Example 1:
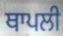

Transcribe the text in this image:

ਥਾਪਲੀ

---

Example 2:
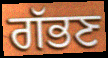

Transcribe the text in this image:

ਗੱਭਣ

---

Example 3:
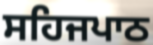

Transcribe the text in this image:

ਸਹਿਜਪਾਠ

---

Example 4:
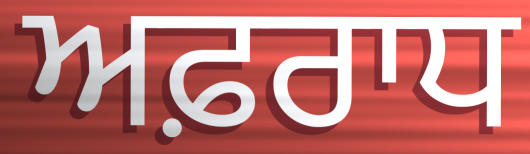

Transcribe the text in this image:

ਅਫ਼ਰਾਧ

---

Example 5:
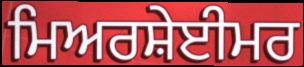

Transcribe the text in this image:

ਮਿਅਰਸ਼ੇਈਮਰ